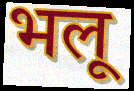
भलू